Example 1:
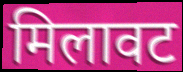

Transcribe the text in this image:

मिलावट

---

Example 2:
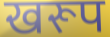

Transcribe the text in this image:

खरूप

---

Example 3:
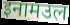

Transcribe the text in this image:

इनामउल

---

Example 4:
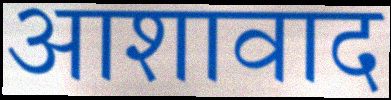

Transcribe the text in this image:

आशावाद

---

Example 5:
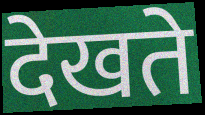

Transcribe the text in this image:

देखते